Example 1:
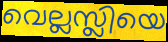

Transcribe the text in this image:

വെല്ലസ്ലിയെ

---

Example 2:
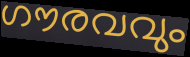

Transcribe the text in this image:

ഗൗരവവും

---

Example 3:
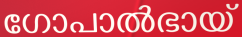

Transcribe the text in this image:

ഗോപാൽഭായ്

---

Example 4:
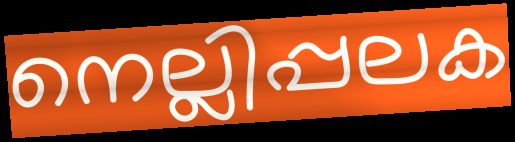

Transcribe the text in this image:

നെല്ലിപ്പലക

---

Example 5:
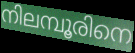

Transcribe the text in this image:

നിലമ്പൂരിനെ